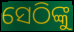
ସେଠିଙ୍କୁ